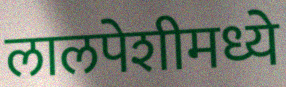
लालपेशीमध्ये